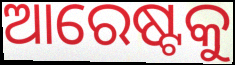
ଆରେଷ୍ଟକୁ